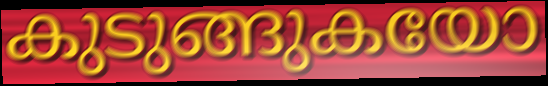
കുടുങ്ങുകയോ